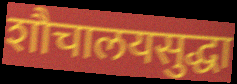
शौचालयसुद्धा